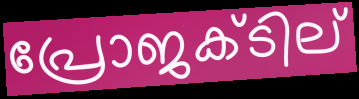
പ്രോജക്ടില്